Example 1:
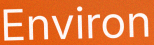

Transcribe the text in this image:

Environ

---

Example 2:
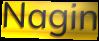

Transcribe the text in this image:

Nagin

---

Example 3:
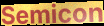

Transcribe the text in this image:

Semicon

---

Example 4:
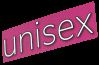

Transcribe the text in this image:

unisex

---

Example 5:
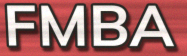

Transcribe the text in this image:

FMBA